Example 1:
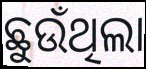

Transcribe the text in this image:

ଛୁଉଁଥିଲା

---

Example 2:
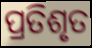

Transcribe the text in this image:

ପ୍ରତିଶୃତ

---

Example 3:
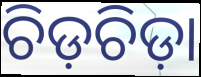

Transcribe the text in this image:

ଚିଡ଼ଚିଡ଼ା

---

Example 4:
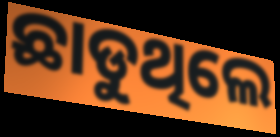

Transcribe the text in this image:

ଛାଡୁଥିଲେ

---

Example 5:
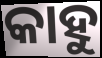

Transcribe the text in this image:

କାହୁ